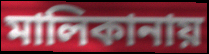
মালিকানায়